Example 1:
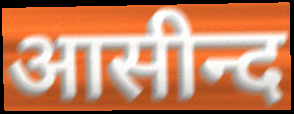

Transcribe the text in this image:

आसीन्द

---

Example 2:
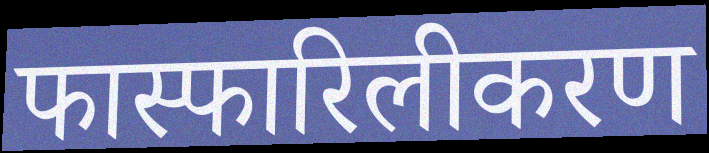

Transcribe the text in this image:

फास्फारिलीकरण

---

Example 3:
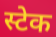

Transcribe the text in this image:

स्टेक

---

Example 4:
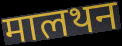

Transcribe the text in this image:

मालथन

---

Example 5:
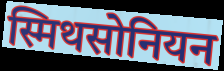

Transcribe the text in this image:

स्मिथसोनियन